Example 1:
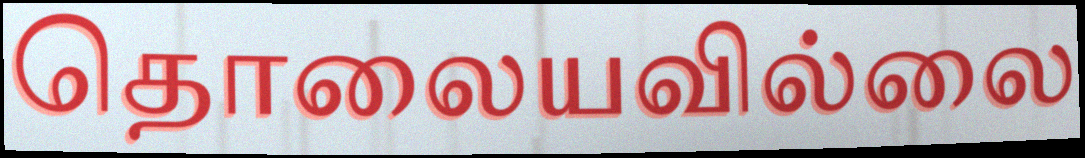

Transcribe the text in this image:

தொலையவில்லை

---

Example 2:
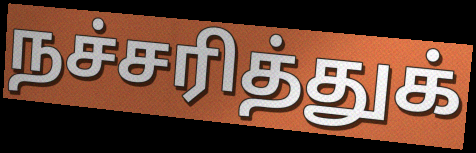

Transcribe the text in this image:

நச்சரித்துக்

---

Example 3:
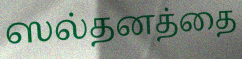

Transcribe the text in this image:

ஸல்தனத்தை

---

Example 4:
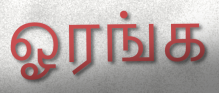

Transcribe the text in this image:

ஓரங்க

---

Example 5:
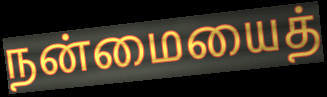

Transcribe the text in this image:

நன்மையைத்